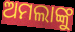
ଅମଲାଙ୍କୁ